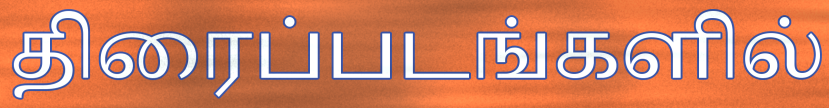
திரைப்படங்களில்